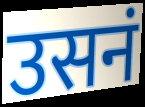
उसनं